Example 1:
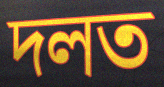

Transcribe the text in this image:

দলত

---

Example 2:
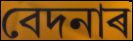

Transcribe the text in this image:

বেদনাৰ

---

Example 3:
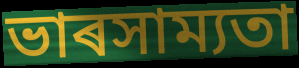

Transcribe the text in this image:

ভাৰসাম্যতা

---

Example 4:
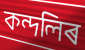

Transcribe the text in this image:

কন্দলিৰ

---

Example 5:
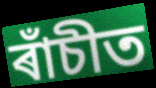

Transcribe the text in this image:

ৰাঁচীত